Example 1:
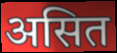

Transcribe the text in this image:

असित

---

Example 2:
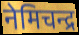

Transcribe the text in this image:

नेमिचन्द्र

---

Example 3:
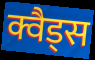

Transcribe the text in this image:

क्वैड्स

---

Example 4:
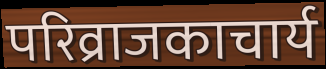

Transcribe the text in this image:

परिव्राजकाचार्य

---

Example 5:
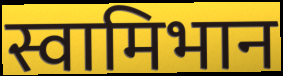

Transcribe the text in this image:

स्वामिभान